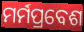
ମର୍ମପ୍ରବେଶ